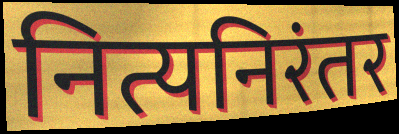
नित्यनिरंतर